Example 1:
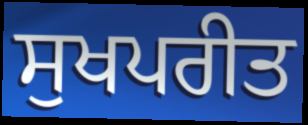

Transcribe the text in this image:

ਸੁਖਪਰੀਤ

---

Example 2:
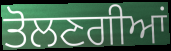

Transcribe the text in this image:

ਤੋਲਣਗੀਆਂ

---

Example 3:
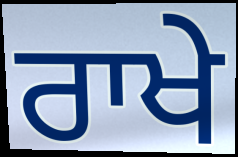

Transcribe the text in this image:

ਰਾਖੇ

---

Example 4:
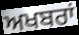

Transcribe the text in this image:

ਅਖਬਰਾਂ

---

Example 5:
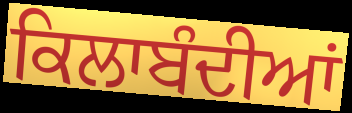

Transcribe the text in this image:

ਕਿਲਾਬੰਦੀਆਂ